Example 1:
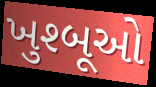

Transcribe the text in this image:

ખુશ્બૂઓ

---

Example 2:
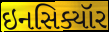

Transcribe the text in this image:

ઇનસિક્યૉર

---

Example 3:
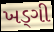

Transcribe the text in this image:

ખડ્ગી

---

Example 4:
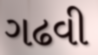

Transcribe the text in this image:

ગઢવી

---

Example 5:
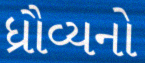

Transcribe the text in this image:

ધ્રૌવ્યનો